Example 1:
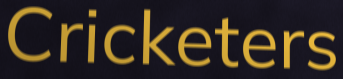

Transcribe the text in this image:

Cricketers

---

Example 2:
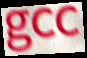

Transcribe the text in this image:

gcc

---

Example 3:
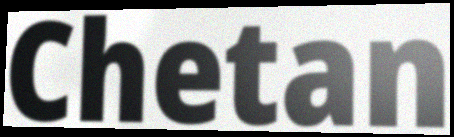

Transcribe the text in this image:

Chetan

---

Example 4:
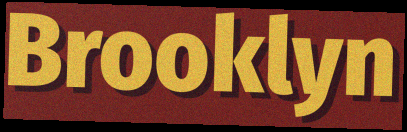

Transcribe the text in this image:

Brooklyn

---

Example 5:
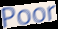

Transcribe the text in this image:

Poor